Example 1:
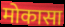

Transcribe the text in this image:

मोकासा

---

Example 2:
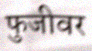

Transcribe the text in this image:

फुजीवर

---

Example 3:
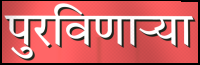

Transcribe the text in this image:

पुरविणाऱ्या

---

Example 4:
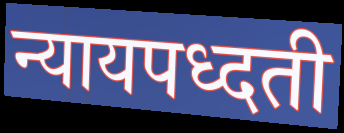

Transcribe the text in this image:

न्यायपध्दती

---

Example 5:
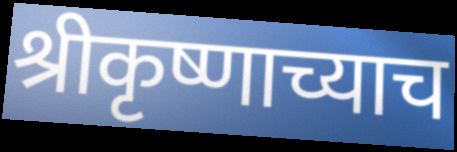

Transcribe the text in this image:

श्रीकृष्णाच्याच